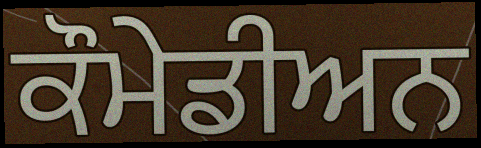
ਕੌਮੇਡੀਅਨ